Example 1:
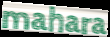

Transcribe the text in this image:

mahara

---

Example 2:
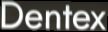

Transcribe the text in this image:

Dentex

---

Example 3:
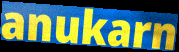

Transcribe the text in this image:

anukarn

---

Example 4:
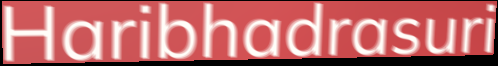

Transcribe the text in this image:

Haribhadrasuri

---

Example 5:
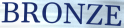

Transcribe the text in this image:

BRONZE